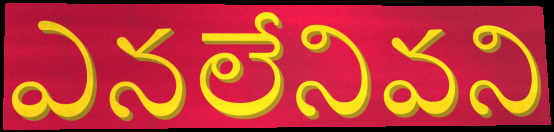
ఎనలేనివని